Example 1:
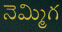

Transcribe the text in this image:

నెమ్మిగ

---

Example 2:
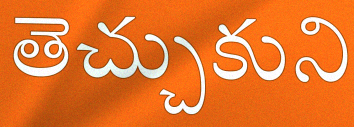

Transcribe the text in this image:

తెచ్చుకుని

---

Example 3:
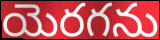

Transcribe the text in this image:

యెరగను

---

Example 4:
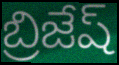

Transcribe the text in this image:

బ్రిజేష్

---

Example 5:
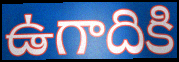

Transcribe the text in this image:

ఉగాదికి